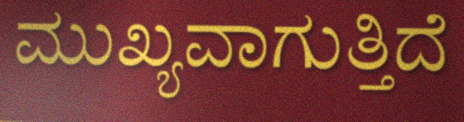
ಮುಖ್ಯವಾಗುತ್ತಿದೆ